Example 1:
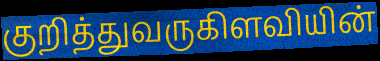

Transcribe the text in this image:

குறித்துவருகிளவியின்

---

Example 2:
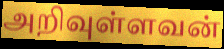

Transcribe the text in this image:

அறிவுள்ளவன்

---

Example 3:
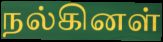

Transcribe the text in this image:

நல்கினள்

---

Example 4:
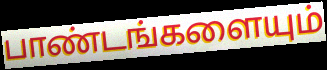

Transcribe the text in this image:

பாண்டங்களையும்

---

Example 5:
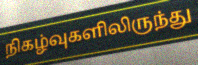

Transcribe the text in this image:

நிகழ்வுகளிலிருந்து